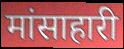
मांसाहारी